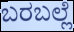
ಬರಬಲ್ಲೆ